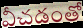
వీచడంతో